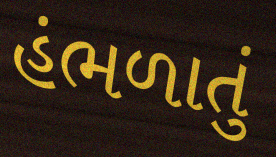
હંભળાતું